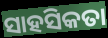
ସାହସିକତା